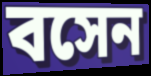
বসেন